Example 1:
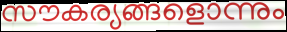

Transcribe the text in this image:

സൗകര്യങ്ങളൊന്നും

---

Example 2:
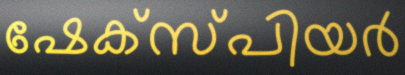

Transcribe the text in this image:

ഷേക്സ്പിയർ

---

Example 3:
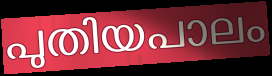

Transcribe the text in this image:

പുതിയപാലം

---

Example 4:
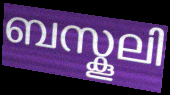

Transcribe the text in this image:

ബസ്കൂലി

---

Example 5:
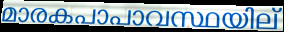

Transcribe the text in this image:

മാരകപാപാവസ്ഥയില്